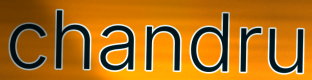
chandru